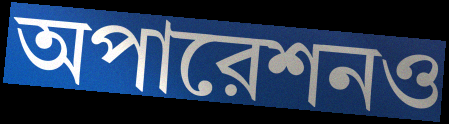
অপারেশনও